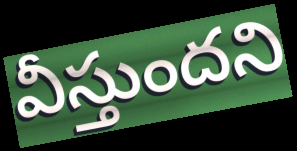
వీస్తుందని